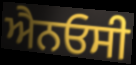
ਐਨਓਸੀ